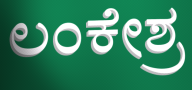
ಲಂಕೇಶ್ರ